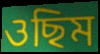
ওছিম